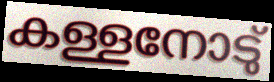
കള്ളനോടു്